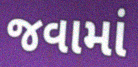
જવામાં